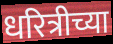
धरित्रीच्या